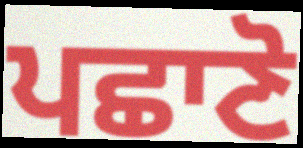
ਪਛਾਣੋ